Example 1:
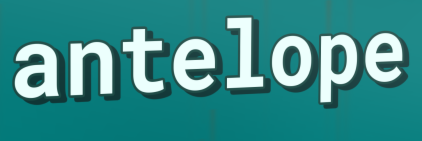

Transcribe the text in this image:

antelope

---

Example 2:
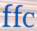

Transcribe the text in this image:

ffc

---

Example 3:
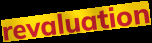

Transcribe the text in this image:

revaluation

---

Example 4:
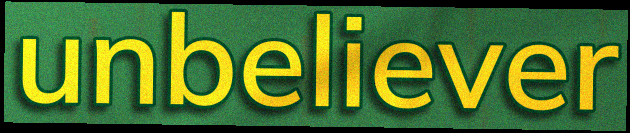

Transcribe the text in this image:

unbeliever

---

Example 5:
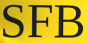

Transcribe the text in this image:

SFB